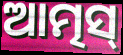
ଆତ୍ମସ୍